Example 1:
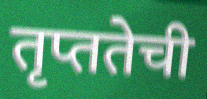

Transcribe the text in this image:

तृप्ततेची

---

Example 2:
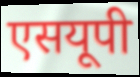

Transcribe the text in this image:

एसयूपी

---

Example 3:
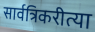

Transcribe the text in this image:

सार्वत्रिकरीत्या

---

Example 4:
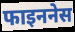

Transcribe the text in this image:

फाइननेस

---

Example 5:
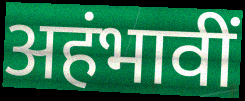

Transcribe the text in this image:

अहंभावीं